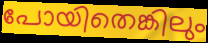
പോയിതെങ്കിലും